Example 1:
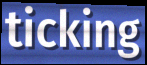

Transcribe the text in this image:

ticking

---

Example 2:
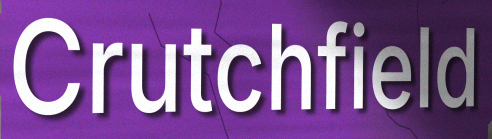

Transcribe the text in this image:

Crutchfield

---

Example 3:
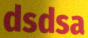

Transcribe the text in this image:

dsdsa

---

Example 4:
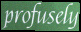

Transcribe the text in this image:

profusely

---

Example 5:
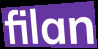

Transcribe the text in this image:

filan